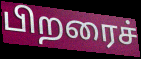
பிறரைச்